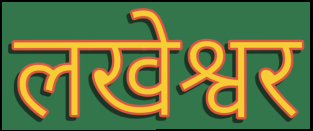
लखेश्वर